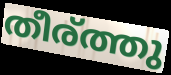
തീര്ത്തു